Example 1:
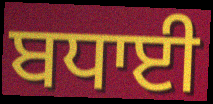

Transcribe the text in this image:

ਬਧਾਈ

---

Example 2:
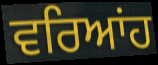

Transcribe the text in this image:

ਵਰਿਆਂਹ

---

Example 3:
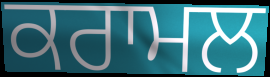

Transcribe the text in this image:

ਕਰਾਮਲ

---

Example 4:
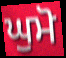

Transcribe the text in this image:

ਘੁਮੋ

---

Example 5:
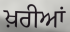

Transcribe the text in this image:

ਖ਼ਰੀਆਂ